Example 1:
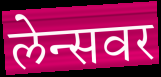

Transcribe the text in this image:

लेन्सवर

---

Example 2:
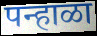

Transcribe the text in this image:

पन्हाळा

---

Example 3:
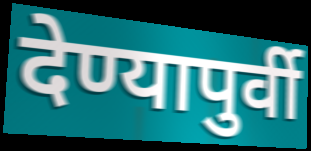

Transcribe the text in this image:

देण्यापुर्वी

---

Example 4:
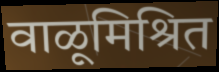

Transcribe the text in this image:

वाळूमिश्रित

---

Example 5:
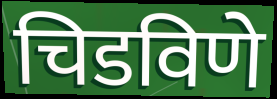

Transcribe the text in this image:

चिडविणे